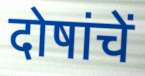
दोषांचें